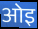
ओइ